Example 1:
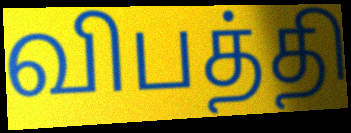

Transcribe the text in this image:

விபத்தி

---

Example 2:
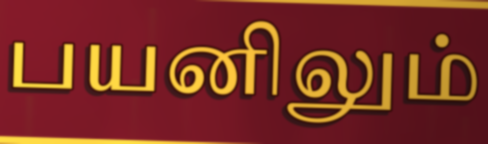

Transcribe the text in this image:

பயனிலும்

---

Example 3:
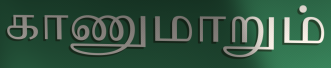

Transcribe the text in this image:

காணுமாறும்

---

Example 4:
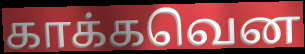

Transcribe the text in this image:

காக்கவென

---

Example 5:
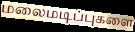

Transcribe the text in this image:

மலைமடிப்புகளை